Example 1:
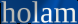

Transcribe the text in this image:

holam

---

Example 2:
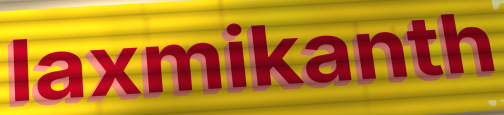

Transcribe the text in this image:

laxmikanth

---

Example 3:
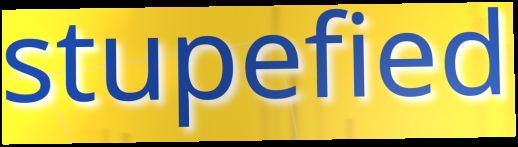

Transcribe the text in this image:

stupefied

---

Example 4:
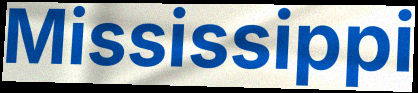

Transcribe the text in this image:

Mississippi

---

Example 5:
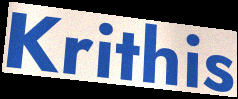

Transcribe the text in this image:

Krithis